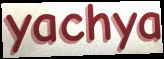
yachya